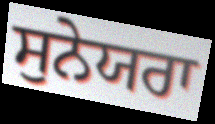
ਸੁਨੇਯਰਾ